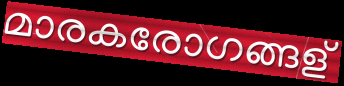
മാരകരോഗങ്ങള്